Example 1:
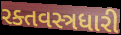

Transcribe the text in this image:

રક્તવસ્ત્રધારી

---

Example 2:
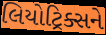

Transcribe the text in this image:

લિયોટ્રિક્સને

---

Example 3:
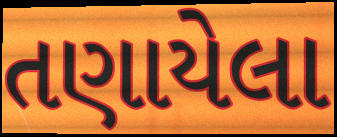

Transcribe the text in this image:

તણાયેલા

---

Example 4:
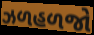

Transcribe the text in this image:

ઝળહળજો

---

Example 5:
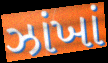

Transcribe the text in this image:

ઝાંખાં